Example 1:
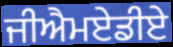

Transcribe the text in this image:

ਜੀਐਮਏਡੀਏ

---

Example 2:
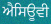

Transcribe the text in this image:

ਐਸਿਊਵੀ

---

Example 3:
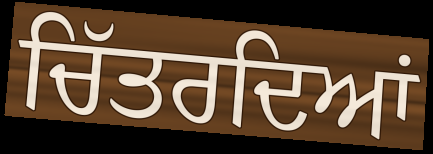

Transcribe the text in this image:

ਚਿੱਤਰਦਿਆਂ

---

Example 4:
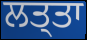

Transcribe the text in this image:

ਲਤ੍ਤਾ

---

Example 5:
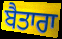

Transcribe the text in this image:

ਬੈਤਾਰਾ